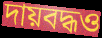
দায়বদ্ধও